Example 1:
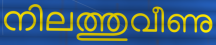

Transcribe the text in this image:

നിലത്തുവീണു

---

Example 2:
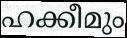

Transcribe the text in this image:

ഹക്കീമും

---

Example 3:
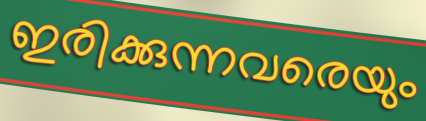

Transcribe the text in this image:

ഇരിക്കുന്നവരെയും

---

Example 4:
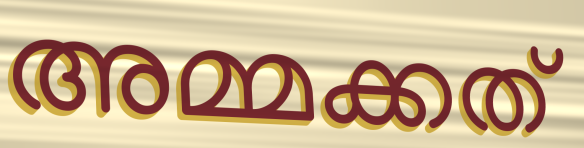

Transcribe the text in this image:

അമ്മക്കത്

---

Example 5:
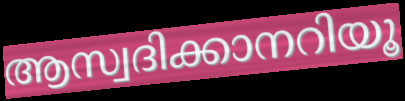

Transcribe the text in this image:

ആസ്വദിക്കാനറിയൂ